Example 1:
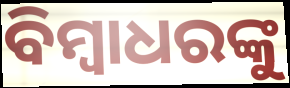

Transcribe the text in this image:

ବିମ୍ୱାଧରଙ୍କୁ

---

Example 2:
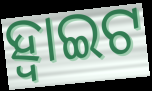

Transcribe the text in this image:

ହ୍ବାଇଟ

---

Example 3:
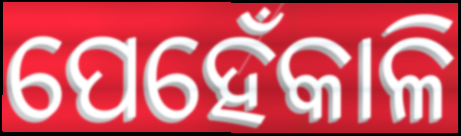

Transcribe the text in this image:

ପେହେଁକାଳି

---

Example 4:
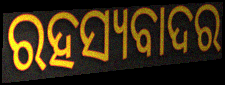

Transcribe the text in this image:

ରହସ୍ୟବାଦର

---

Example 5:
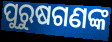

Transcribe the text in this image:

ପୁରୁଷଗଣଙ୍କ